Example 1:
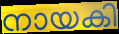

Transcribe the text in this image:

നായകി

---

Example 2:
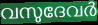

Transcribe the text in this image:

വസുദേവർ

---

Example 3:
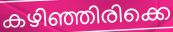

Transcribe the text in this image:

കഴിഞ്ഞിരിക്കെ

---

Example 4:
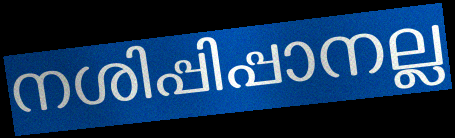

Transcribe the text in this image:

നശിപ്പിപ്പാനല്ല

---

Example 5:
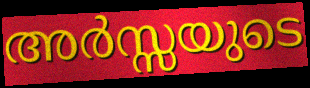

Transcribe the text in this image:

അർസ്സയുടെ